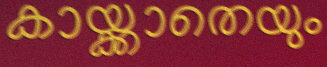
കായ്ക്കാതെയും